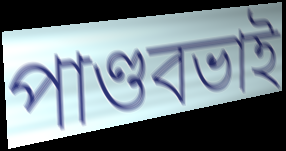
পাণ্ডবভাই